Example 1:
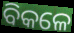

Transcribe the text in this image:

ବିକଳେ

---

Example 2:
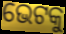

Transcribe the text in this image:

ଭେଟକୁ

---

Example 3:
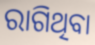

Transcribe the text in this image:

ରାଗିଥିବା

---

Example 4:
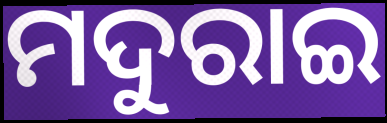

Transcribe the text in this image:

ମଦୁରାଇ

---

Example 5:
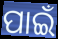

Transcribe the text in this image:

ପାଇଁ